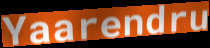
Yaarendru